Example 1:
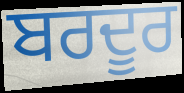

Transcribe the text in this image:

ਬਰਦੂਰ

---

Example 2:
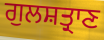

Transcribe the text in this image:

ਗੁਲਸ਼ਤ੍ਰਾਣ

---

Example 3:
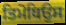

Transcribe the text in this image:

ਤਿਮੋਥਿਉਸ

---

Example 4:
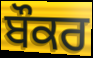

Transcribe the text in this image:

ਬੌਕਰ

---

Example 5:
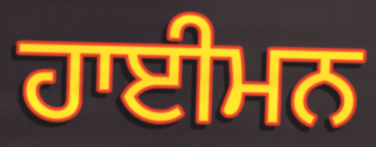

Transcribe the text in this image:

ਹਾਈਮਨ